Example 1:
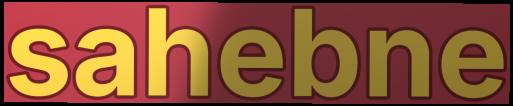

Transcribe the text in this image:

sahebne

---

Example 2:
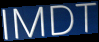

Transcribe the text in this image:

IMDT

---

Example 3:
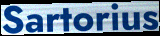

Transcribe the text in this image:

Sartorius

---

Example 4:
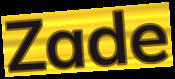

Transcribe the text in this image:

Zade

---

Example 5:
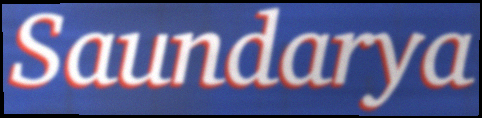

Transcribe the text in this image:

Saundarya